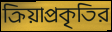
ক্রিয়াপ্রকৃতির